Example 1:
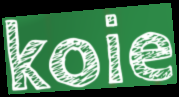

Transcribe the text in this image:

koie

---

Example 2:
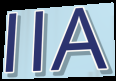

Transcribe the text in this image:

IIA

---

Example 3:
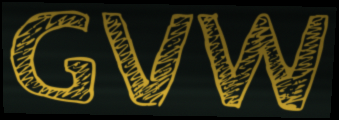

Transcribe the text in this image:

GVW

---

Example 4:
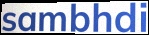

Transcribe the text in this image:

sambhdi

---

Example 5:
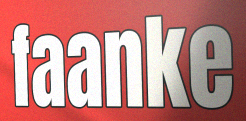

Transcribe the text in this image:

faanke